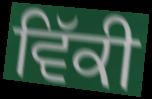
ਵਿੱਕੀ